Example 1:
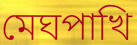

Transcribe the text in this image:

মেঘপাখি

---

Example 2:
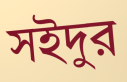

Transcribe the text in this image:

সইদুর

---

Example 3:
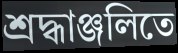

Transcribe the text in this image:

শ্রদ্ধাঞ্জলিতে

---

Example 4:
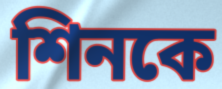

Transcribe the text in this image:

শিনকে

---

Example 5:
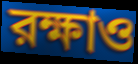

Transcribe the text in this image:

রক্ষাও